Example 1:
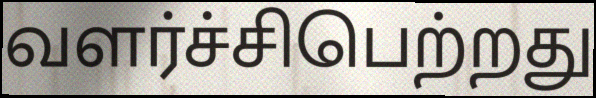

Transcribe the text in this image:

வளர்ச்சிபெற்றது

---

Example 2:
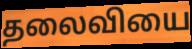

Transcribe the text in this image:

தலைவியை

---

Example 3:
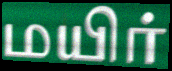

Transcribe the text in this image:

மயிர்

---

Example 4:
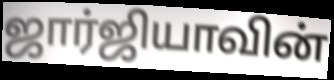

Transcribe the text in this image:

ஜார்ஜியாவின்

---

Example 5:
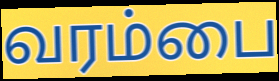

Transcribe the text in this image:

வரம்பை